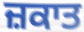
ਜ਼ਕਾਤ